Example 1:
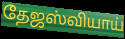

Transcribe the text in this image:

தேஜஸ்வியாய்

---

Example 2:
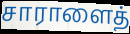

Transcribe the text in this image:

சாராளைத்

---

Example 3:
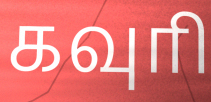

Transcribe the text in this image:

கவுரி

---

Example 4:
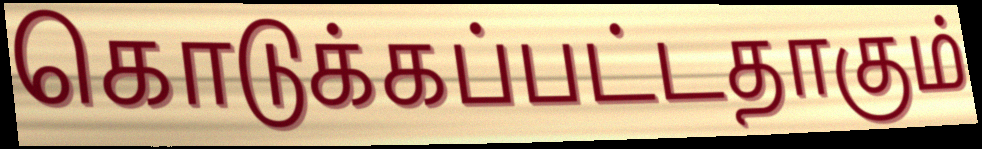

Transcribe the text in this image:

கொடுக்கப்பட்டதாகும்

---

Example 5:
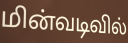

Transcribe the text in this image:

மின்வடிவில்